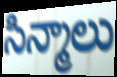
సిన్మాలు